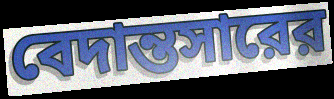
বেদান্তসারের